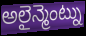
అలైన్మెంట్ను